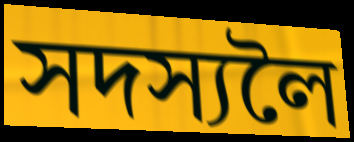
সদস্যলৈ